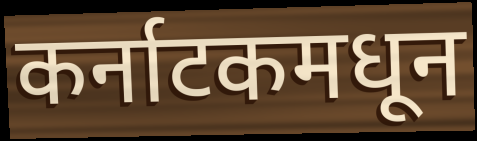
कर्नाटकमधून